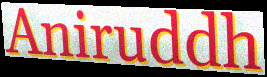
Aniruddh